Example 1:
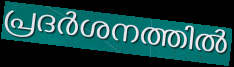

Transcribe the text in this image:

പ്രദർശനത്തിൽ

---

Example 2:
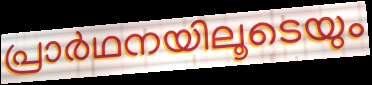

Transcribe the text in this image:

പ്രാർഥനയിലൂടെയും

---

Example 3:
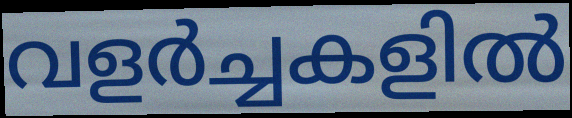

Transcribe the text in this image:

വളർച്ചകളിൽ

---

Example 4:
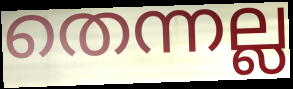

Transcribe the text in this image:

തെന്നല്ല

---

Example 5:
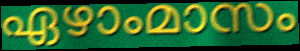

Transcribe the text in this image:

ഏഴാംമാസം